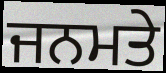
ਜਨਮਤੇ